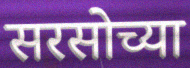
सरसोच्या